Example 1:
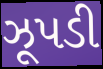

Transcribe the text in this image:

ઝૂપડી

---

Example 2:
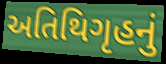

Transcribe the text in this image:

અતિથિગૃહનું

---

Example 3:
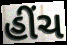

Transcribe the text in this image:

હીંચ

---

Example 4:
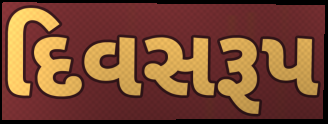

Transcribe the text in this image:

દિવસરૂપ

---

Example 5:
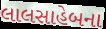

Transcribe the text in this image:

લાલસાહેબના